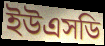
ইউএসডি